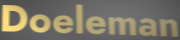
Doeleman